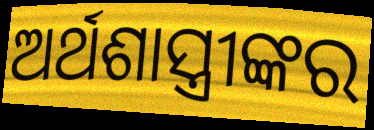
ଅର୍ଥଶାସ୍ତ୍ରୀଙ୍କର